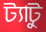
ট্যাটু